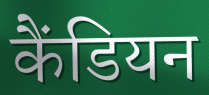
कैंडियन